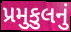
પ્રમુકુલનું